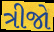
ત્રીજો